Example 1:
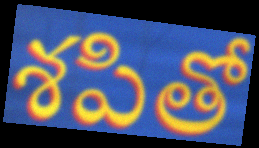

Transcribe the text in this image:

శపితో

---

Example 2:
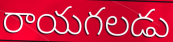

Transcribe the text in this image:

రాయగలడు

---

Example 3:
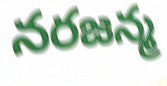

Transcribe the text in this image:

నరజన్మ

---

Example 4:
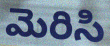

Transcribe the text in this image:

మెరిసి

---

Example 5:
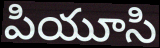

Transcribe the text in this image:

పియూసి